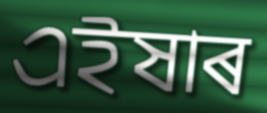
এইষাৰ